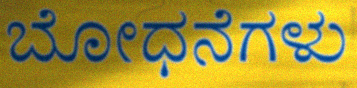
ಬೋಧನೆಗಳು